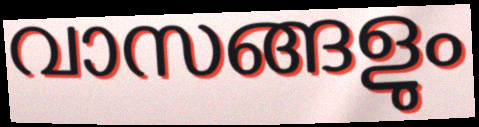
വാസങ്ങളും